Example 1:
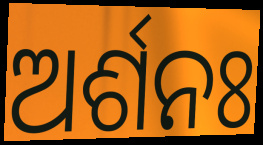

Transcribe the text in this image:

ଅର୍ଶନଃ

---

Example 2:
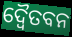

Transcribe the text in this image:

ଦ୍ୱୈତବନ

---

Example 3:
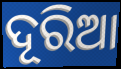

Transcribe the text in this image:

ଦୂରିଆ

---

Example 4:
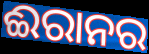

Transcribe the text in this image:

ଈରାନର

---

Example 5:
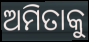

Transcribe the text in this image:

ଅମିତାକୁ